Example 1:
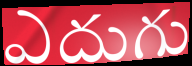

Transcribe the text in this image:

ఎదుగు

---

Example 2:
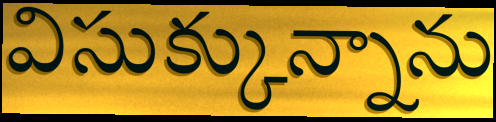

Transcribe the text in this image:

విసుక్కున్నాను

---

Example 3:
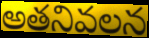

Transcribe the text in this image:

అతనివలన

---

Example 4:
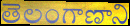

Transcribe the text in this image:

తెలంగాణాని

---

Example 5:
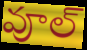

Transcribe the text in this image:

వూల్